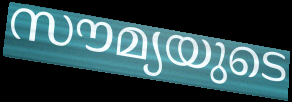
സൗമ്യയുടെ